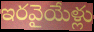
ఇరవైయేళ్లు